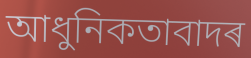
আধুনিকতাবাদৰ